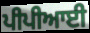
ਪੀਪੀਆਈ